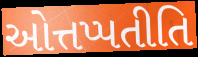
ઓત્તપ્પતીતિ